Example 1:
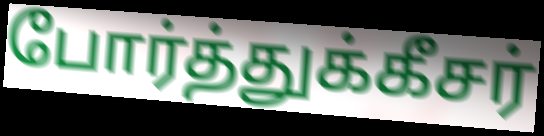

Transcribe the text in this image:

போர்த்துக்கீசர்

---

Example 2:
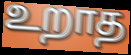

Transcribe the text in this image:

உறாத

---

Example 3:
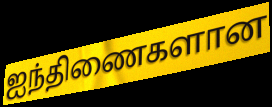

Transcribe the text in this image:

ஐந்திணைகளான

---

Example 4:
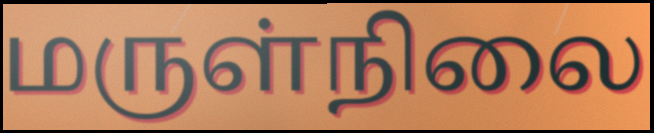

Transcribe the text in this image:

மருள்நிலை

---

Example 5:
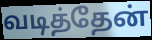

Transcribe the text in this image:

வடித்தேன்